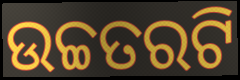
ଉଚ୍ଚତରଟି